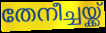
തേനീച്ചയ്ക്ക്